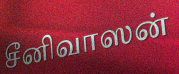
சீனிவாஸன்